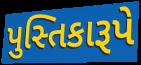
પુસ્તિકારૂપે